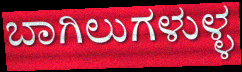
ಬಾಗಿಲುಗಳುಳ್ಳ